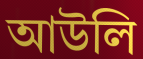
আউলি